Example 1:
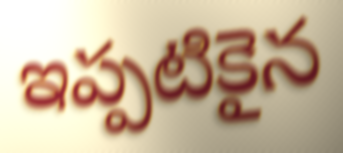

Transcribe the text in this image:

ఇప్పటికైన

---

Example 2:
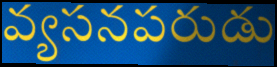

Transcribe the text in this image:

వ్యసనపరుడు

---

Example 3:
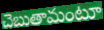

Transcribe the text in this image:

చెబుతామంటూ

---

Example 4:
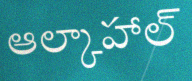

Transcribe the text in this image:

ఆల్కాహాల్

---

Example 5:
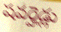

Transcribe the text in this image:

షవర్హెడ్లు